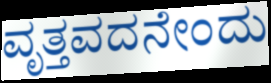
ವೃತ್ತವದನೇಂದು